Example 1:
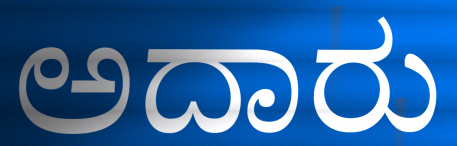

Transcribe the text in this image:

ಅದಾರು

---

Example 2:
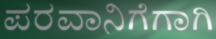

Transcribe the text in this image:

ಪರವಾನಿಗೆಗಾಗಿ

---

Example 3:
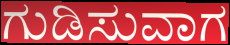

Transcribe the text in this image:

ಗುಡಿಸುವಾಗ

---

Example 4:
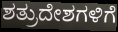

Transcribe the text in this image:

ಶತ್ರುದೇಶಗಳಿಗೆ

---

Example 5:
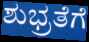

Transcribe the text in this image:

ಶುಭ್ರತೆಗೆ